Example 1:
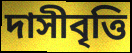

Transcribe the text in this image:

দাসীবৃত্তি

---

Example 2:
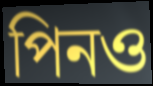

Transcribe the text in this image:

পিনও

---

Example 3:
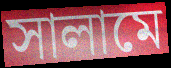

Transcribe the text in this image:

সালামে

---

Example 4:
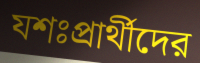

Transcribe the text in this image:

যশঃপ্রার্থীদের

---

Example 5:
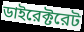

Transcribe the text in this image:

ডাইরেক্টরেট